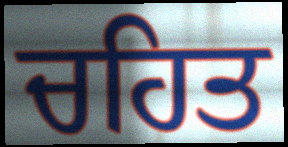
ਚਹਿਤ